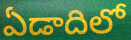
ఏడాదిలో